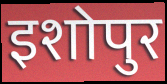
इशोपुर